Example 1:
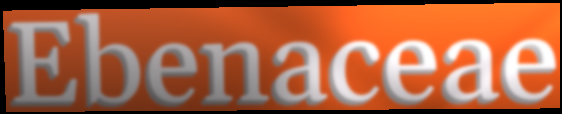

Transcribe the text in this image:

Ebenaceae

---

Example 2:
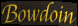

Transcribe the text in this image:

Bowdoin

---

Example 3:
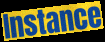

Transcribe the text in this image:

Instance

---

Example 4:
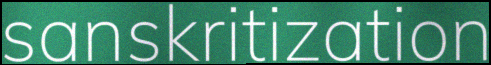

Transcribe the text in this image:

sanskritization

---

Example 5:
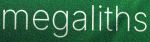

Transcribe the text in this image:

megaliths